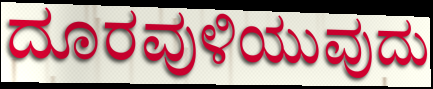
ದೂರವುಳಿಯುವುದು